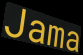
Jama